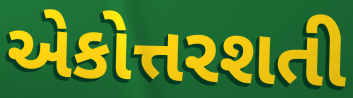
એકોત્તરશતી